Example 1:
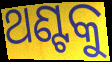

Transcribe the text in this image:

ଥଣ୍ଟକୁ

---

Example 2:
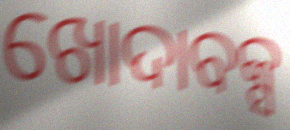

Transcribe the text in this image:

ଖୋଦାବକ୍ସ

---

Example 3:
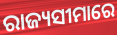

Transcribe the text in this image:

ରାଜ୍ୟସୀମାରେ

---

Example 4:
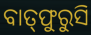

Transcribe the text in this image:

ବାତ୍‌ଫୁରୁସି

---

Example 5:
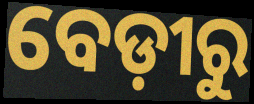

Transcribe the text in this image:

ବେଡ଼ୀରୁ